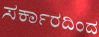
ಸರ್ಕಾರದಿಂದ